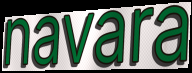
navara